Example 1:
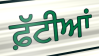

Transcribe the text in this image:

ਫ਼ੱਟੀਆਂ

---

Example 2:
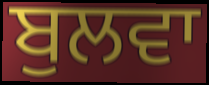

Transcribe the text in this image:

ਬੁਲਵਾ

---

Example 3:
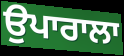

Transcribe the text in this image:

ਉਪਾਰਾਲਾ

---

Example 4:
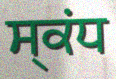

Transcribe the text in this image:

ਸ੍ਕਂਧ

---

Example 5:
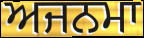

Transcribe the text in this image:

ਅਜਨਮਾ